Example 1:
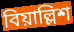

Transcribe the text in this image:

বিয়াল্লিশ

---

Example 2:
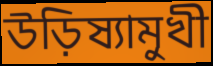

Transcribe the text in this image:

উড়িষ্যামুখী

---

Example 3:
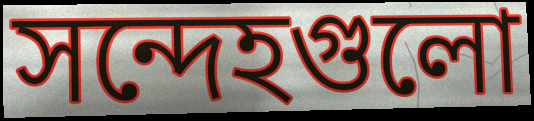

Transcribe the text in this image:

সন্দেহগুলো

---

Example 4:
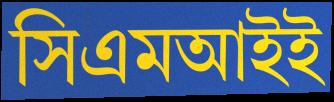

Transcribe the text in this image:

সিএমআইই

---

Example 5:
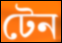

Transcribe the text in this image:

টেন